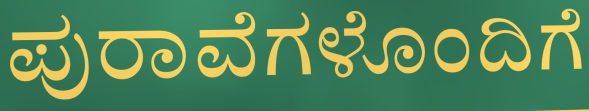
ಪುರಾವೆಗಳೊಂದಿಗೆ